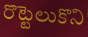
రొట్టెలుకొని